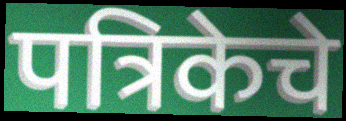
पत्रिकेचे